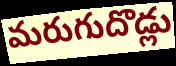
మరుగుదొడ్లు